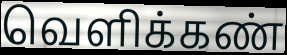
வெளிக்கண்